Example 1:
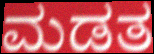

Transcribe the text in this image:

ಮಡತ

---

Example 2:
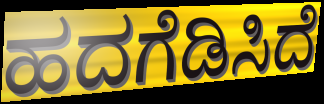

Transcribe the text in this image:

ಹದಗೆಡಿಸಿದೆ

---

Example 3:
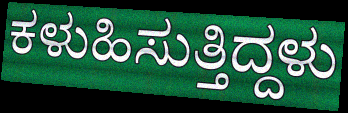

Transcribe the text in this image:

ಕಳುಹಿಸುತ್ತಿದ್ದಳು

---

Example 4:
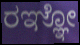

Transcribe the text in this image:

ರಞ್ಞೋ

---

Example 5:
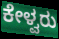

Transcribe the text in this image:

ಕೇಳ್ವರು